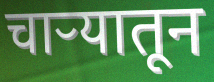
चाऱ्यातून